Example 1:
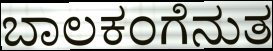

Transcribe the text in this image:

ಬಾಲಕಂಗೆನುತ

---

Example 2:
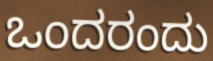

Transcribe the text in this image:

ಒಂದರಂದು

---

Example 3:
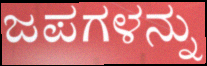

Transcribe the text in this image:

ಜಪಗಳನ್ನು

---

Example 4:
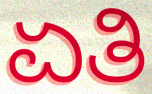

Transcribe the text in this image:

ಏತಿ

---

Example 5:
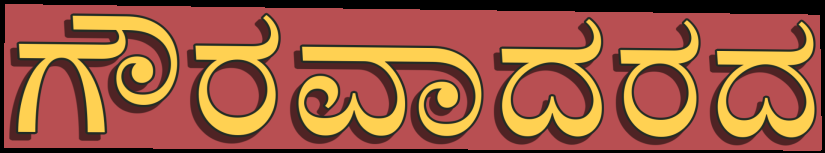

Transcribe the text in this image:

ಗೌರವಾದರದ